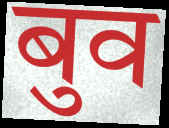
बुव